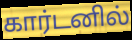
கார்டனில்